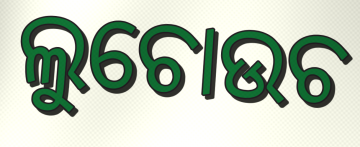
ଲୁଚୋଉଚ